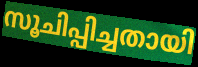
സൂചിപ്പിച്ചതായി